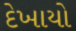
દેખાયો